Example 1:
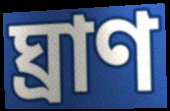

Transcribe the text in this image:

ঘ্রাণ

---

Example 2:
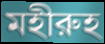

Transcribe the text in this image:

মহীরুহ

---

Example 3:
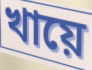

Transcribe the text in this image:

খায়ে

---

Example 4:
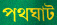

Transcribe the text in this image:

পথঘাট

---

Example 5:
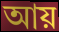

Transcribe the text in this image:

আয়